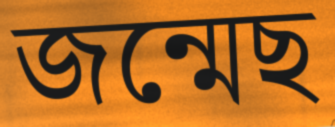
জন্মেছ